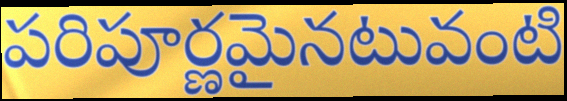
పరిపూర్ణమైనటువంటి